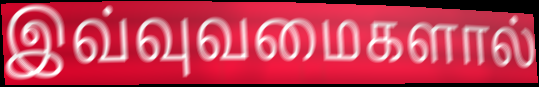
இவ்வுவமைகளால்